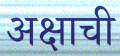
अक्षाची